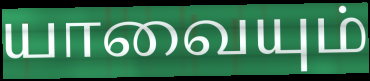
யாவையும்